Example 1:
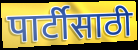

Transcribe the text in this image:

पार्टीसाठी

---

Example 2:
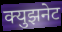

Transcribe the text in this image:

क्युझनेट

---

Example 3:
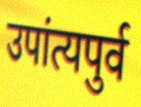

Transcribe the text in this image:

उपांत्यपुर्व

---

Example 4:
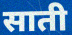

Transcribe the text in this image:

साती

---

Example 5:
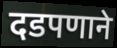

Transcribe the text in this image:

दडपणाने